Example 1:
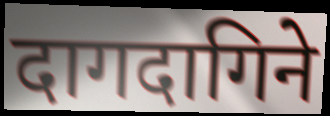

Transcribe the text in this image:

दागदागिने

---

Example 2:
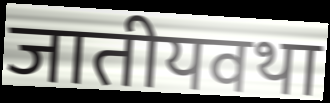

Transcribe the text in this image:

जातीयवथा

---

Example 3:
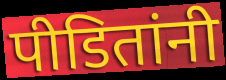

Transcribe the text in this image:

पीडितांनी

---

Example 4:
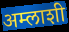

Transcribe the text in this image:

अम्लाशी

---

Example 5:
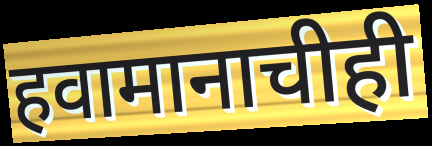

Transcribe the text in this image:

हवामानाचीही